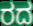
ರದ